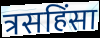
त्रसहिंसा